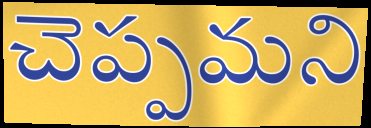
చెప్పమని